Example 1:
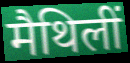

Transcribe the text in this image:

मैथिलीं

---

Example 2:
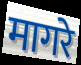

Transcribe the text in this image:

मागरे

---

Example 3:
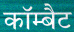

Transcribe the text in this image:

कॉम्बैट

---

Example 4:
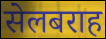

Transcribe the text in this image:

सेलबराह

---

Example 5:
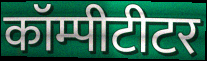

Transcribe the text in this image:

कॉम्पीटीटर